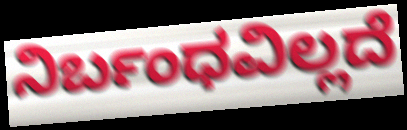
ನಿರ್ಬಂಧವಿಲ್ಲದೆ